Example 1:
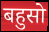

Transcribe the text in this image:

बहुसो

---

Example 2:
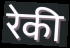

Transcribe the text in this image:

रेकी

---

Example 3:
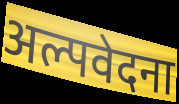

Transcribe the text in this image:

अल्पवेदना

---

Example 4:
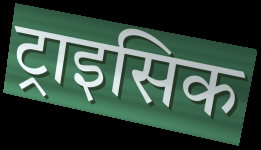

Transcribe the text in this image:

ट्राइसिक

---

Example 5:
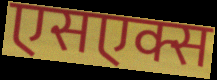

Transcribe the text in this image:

एसएक्स